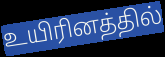
உயிரினத்தில்